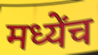
मध्येंच